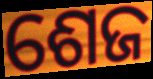
ଶେଜ